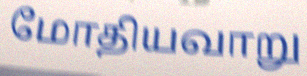
மோதியவாறு